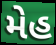
મેહ